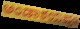
ಅಂಡಾಶಯವೂ